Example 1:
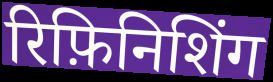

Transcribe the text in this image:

रिफ़िनिशिंग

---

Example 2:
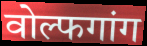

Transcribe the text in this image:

वोल्फगांग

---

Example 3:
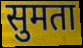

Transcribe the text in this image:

सुमता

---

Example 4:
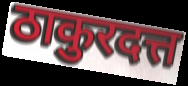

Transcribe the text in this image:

ठाकुरदत्त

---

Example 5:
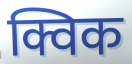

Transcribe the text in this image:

क्विक